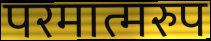
परमात्मरुप